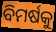
ବିମର୍ଷକୁ